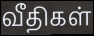
வீதிகள்